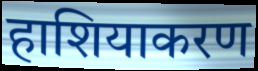
हाशियाकरण